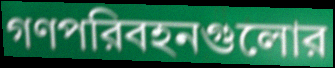
গণপরিবহনগুলোর